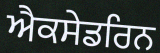
ਐਕਸੇਡਰਿਨ